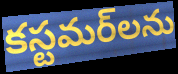
కస్టమర్‌లను